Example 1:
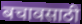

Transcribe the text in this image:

बचावसाठी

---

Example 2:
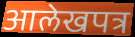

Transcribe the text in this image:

आलेखपत्र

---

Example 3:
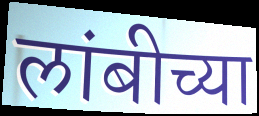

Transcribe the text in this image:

लांबीच्या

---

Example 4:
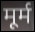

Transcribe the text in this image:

मूर्म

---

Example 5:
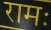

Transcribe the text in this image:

रामः